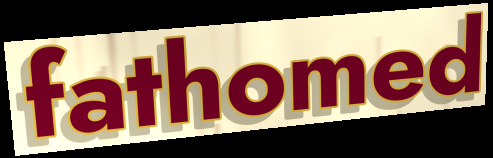
fathomed